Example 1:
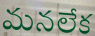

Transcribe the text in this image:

మనలేక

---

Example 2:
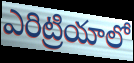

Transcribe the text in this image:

ఎరిట్రియాలో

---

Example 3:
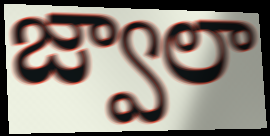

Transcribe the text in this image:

జ్వాలా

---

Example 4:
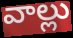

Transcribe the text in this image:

వాల్లు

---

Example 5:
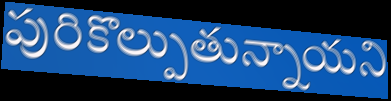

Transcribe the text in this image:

పురికొల్పుతున్నాయని